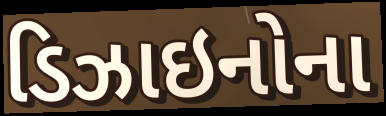
ડિઝાઇનોના